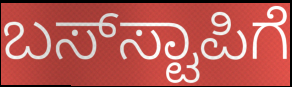
ಬಸ್‌ಸ್ಟಾಪಿಗೆ